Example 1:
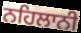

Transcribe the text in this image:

ਨਹਿਲਾਨੀ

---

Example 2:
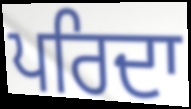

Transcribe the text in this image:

ਪਰਿਦਾ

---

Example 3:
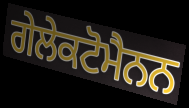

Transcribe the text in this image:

ਗੇਲੇਕਟੋਮੈਨਨ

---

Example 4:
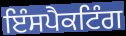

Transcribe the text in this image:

ਇੰਸਪੈਕਟਿੰਗ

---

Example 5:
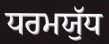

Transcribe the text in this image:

ਧਰਮਯੁੱਧ